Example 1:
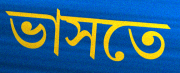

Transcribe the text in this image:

ভাসতে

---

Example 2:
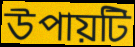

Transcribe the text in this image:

উপায়টি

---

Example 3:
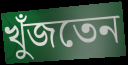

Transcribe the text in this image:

খুঁজতেন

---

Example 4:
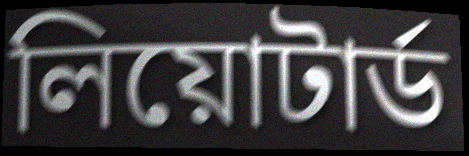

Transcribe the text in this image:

লিয়োটার্ড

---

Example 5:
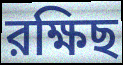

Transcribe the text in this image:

রক্ষিছ